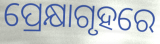
ପ୍ରେକ୍ଷାଗୃହରେ